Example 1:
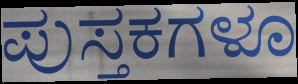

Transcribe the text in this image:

ಪುಸ್ತಕಗಳೂ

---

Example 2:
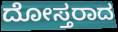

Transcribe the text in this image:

ದೋಸ್ತರಾದ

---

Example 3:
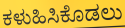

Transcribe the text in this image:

ಕಳುಹಿಸಿಕೊಡಲು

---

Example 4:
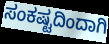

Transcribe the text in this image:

ಸಂಕಷ್ಟದಿಂದಾಗಿ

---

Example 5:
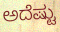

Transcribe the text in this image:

ಅದೆಷ್ಟು